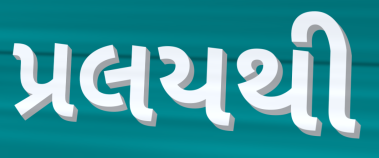
પ્રલયથી